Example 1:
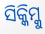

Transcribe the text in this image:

ସିକ୍କିମ୍କୁ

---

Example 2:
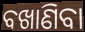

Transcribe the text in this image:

ବଖାଣିବା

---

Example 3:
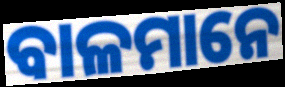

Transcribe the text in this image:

ବାଳମାନେ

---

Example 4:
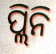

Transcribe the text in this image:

ପ୍ଲିନି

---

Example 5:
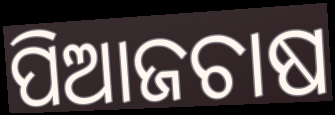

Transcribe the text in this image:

ପିଆଜଚାଷ